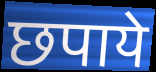
छपाये